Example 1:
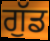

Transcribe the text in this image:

ਗੁੱਡ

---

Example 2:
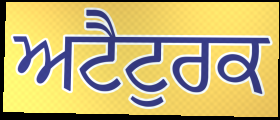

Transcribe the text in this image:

ਅਟੈਟੁਰਕ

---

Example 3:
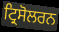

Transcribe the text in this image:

ਟ੍ਰਿਸੋਲਰਨ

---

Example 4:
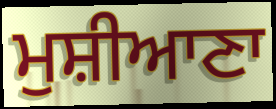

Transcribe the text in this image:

ਮੁਸ਼ੀਆਣਾ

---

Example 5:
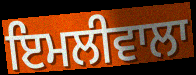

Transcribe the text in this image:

ਇਮਲੀਵਾਲਾ